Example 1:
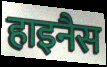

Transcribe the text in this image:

हाइनैस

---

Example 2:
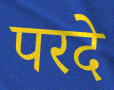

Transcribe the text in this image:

परदे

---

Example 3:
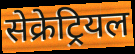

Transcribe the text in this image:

सेक्रेट्रियल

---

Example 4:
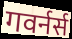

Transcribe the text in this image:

गवर्नर्स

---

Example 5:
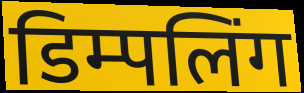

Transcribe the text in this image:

डिम्पलिंग